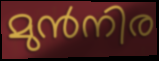
മുൻനിര